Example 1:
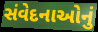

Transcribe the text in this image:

સંવેદનાઓનું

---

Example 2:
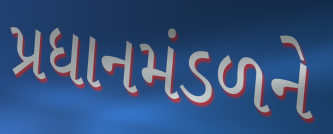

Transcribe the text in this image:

પ્રધાનમંડળને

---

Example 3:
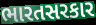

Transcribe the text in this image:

ભારતસરકાર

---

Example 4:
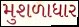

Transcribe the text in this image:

મુશળાધાર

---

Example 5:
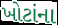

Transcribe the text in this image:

ખોટાંના